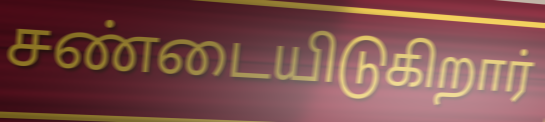
சண்டையிடுகிறார்